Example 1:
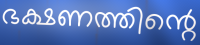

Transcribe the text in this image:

ഭക്ഷണത്തിന്റെ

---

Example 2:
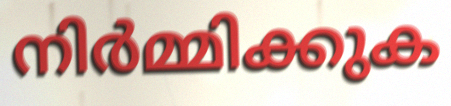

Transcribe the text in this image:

നിർമ്മിക്കുക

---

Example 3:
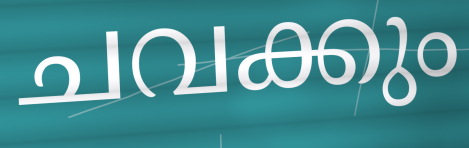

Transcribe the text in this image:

ചവക്കും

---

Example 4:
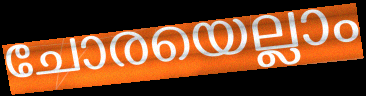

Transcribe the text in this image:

ചോരയെല്ലാം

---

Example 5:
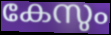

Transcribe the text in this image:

കേസും